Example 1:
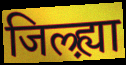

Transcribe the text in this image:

जिल्ह्य़ा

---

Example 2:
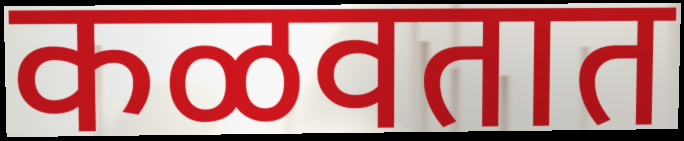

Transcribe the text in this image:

कळवतात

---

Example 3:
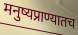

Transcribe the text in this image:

मनुष्यप्राण्यातच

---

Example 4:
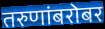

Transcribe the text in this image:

तरुणांबरोबर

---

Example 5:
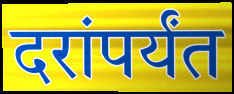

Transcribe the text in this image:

दरांपर्यंत